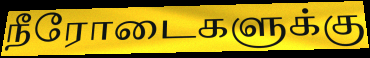
நீரோடைகளுக்கு